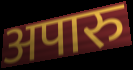
अपारु